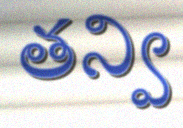
తన్వి